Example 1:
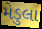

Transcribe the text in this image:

મેડુલા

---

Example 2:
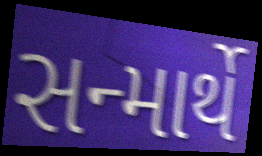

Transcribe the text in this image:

સન્માર્થે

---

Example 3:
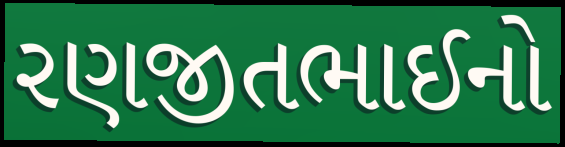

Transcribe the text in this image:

રણજીતભાઈનો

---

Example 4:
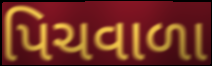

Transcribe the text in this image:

પિચવાળા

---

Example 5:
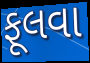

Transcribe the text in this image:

ફૂલવા